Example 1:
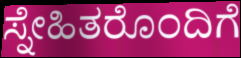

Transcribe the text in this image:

ಸ್ನೇಹಿತರೊಂದಿಗೆ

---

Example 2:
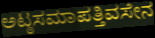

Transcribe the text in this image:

ಅಟ್ಠಸಮಾಪತ್ತಿವಸೇನ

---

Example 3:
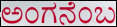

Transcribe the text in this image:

ಅಂಗನೆಂಬ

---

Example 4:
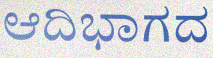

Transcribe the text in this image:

ಆದಿಭಾಗದ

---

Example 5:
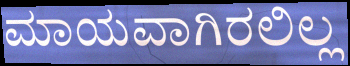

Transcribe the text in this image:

ಮಾಯವಾಗಿರಲಿಲ್ಲ